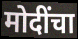
मोदींचा